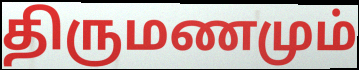
திருமணமும்